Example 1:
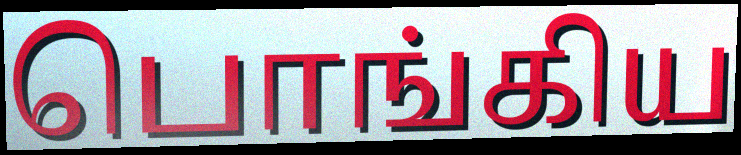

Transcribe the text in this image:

பொங்கிய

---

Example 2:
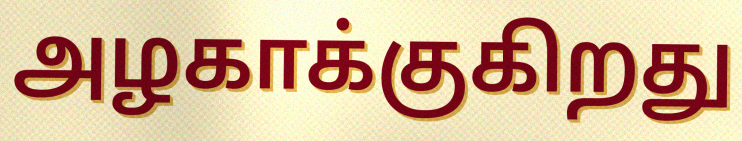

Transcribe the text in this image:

அழகாக்குகிறது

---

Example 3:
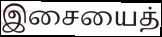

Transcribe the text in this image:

இசையைத்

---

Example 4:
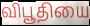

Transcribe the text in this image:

விபூதியை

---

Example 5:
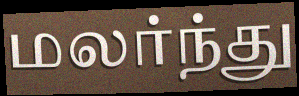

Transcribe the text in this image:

மலர்ந்து